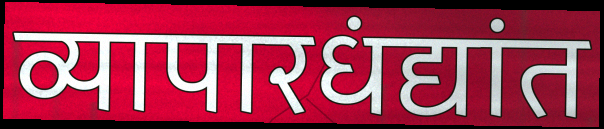
व्यापारधंद्यांत